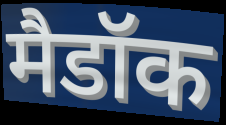
मैडॉक